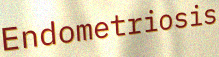
Endometriosis